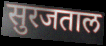
सुरजताल